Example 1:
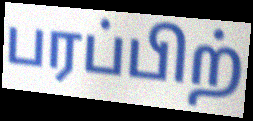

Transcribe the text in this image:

பரப்பிற்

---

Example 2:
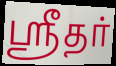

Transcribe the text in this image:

ஸ்ரீதர்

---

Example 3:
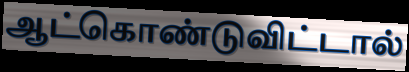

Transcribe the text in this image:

ஆட்கொண்டுவிட்டால்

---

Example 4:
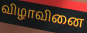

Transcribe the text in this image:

விழாவினை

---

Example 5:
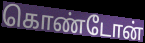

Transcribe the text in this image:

கொண்டோன்